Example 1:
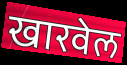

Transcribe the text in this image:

खारवेल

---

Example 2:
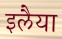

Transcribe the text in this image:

इलैया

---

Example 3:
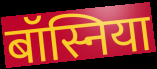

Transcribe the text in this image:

बॉस्निया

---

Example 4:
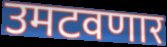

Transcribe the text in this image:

उमटवणार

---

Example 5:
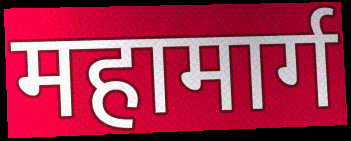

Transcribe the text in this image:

महामार्ग